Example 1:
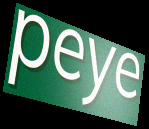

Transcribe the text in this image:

peye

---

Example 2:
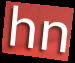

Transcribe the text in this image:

hn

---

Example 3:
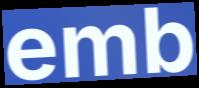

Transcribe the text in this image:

emb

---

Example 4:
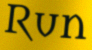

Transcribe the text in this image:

Run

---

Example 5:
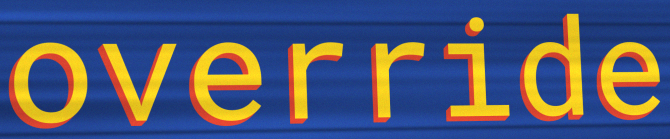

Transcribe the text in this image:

override